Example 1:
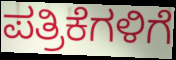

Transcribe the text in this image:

ಪತ್ರಿಕೆಗಳಿಗೆ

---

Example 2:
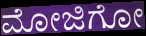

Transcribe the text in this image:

ಮೋಜಿಗೋ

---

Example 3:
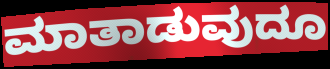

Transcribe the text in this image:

ಮಾತಾಡುವುದೂ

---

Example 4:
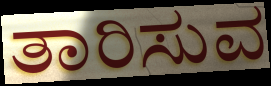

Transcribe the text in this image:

ತಾರಿಸುವ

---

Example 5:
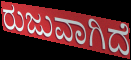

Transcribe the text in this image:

ರುಜುವಾಗಿದೆ